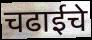
चढाईचे